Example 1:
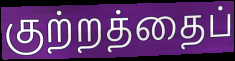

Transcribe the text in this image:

குற்றத்தைப்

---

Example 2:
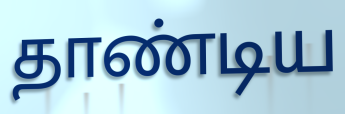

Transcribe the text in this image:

தாண்டிய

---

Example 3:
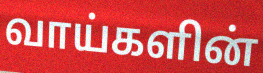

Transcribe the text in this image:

வாய்களின்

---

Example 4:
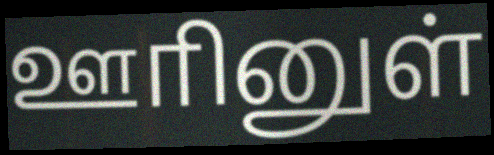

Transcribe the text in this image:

ஊரினுள்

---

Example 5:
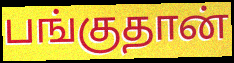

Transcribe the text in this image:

பங்குதான்